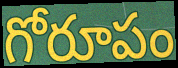
గోరూపం